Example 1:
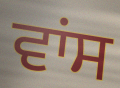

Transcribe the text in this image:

ਵਾਂਸ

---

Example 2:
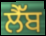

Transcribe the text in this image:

ਲੈੱਬ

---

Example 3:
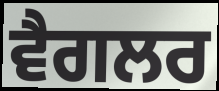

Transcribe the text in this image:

ਵੈਗਲਰ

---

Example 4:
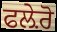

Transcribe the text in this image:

ਫਲ਼ੇਰੋ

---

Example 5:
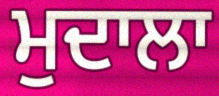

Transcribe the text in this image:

ਮੁਦਾਲਾ